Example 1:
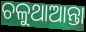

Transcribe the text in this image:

ଚଳୁଥାଆନ୍ତା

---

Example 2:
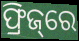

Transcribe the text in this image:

ଫ୍ରିଜ୍‌ରେ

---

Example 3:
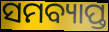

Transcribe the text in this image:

ସମବ୍ୟାପ୍ତ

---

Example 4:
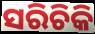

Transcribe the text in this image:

ସରିଚିକି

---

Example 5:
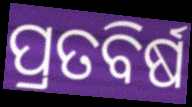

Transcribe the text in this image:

ପ୍ରତବିର୍ଷ